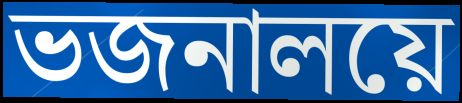
ভজনালয়ে